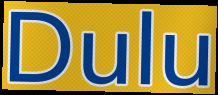
Dulu